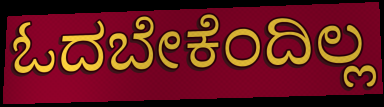
ಓದಬೇಕೆಂದಿಲ್ಲ